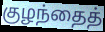
குழந்தைத்